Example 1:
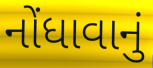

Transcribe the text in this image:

નોંધાવાનું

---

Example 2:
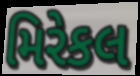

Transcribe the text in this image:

મિરેકલ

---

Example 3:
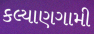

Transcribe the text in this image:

કલ્યાણગામી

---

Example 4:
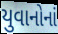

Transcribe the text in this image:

યુવાનોનાં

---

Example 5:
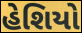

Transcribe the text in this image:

હેશિયો